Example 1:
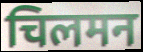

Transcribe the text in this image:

चिलमन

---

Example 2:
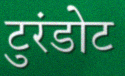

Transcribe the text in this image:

टुरंडोट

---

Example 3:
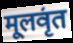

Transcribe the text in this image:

मूलवृंत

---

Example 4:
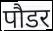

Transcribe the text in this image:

पौडर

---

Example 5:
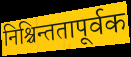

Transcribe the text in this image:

निश्चिन्ततापूर्वक